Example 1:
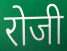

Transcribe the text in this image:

रोजी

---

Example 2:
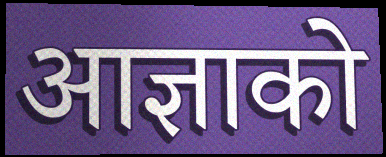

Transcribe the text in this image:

आज्ञाको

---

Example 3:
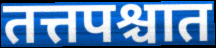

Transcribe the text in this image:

तत्तपश्चात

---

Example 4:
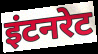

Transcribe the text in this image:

इंटनरेट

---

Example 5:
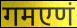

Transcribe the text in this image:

गमएणं